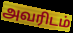
அவரிடம்